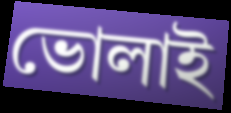
ভোলাই